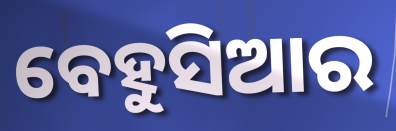
ବେହୁସିଆର